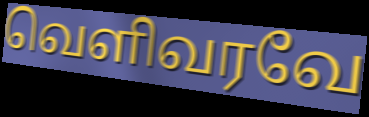
வெளிவரவே